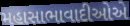
મહાસાભાવાદીઓએ